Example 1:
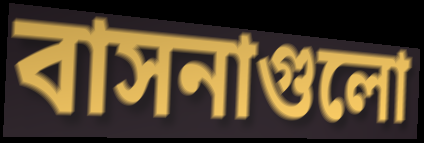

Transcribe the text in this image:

বাসনাগুলো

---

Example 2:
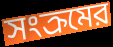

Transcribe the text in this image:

সংক্রমের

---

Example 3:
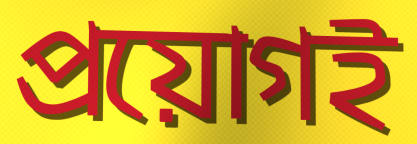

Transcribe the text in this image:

প্রয়োগই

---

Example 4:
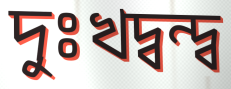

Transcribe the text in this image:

দুঃখদ্বন্দ্ব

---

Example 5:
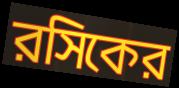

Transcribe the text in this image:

রসিকের